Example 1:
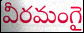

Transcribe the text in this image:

వీరమంగై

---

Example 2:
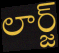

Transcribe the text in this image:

లార్జ్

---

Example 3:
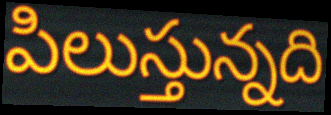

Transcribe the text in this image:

పిలుస్తున్నది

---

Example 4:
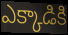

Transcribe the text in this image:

ఎక్కాడికి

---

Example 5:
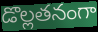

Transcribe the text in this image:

డొల్లతనంగా